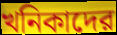
খনিকাদের